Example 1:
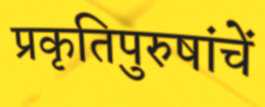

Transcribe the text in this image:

प्रकृतिपुरुषांचें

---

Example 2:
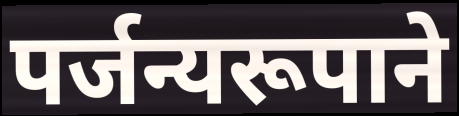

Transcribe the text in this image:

पर्जन्यरूपाने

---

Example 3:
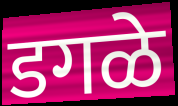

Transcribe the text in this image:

डगळे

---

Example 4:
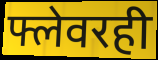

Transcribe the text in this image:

फ्लेवरही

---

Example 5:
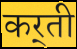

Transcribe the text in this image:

कर्ती